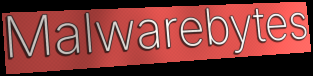
Malwarebytes